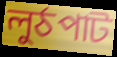
লুঠপাট